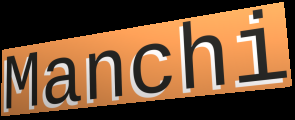
Manchi